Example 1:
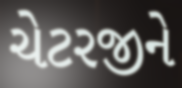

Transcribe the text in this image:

ચેટરજીને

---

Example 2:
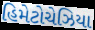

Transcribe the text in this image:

હિમેટોચેઝિયા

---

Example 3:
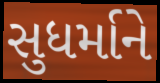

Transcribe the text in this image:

સુધર્માને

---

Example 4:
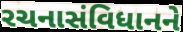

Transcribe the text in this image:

રચનાસંવિધાનને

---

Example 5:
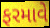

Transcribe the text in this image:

ફરમાવે